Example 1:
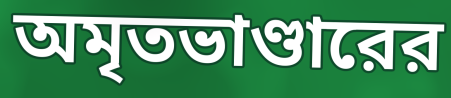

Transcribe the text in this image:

অমৃতভাণ্ডারের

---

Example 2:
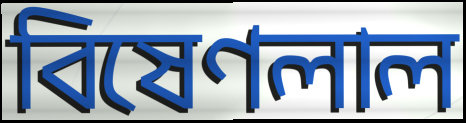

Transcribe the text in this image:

বিষেণলাল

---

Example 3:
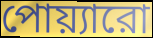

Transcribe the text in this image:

পোয়্যারো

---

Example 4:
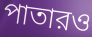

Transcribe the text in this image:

পাতারও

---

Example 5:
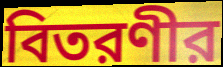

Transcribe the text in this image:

বিতরণীর